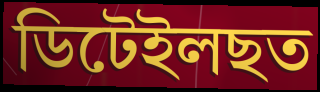
ডিটেইলছত